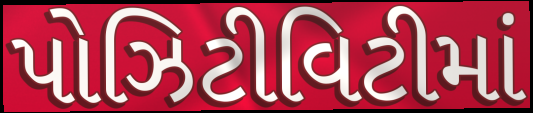
પોઝિટીવિટીમાં